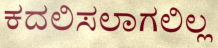
ಕದಲಿಸಲಾಗಲಿಲ್ಲ